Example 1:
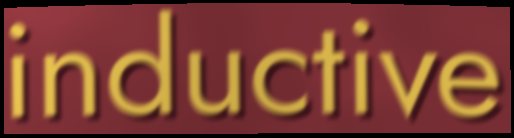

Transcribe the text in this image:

inductive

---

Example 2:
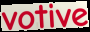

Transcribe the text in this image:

votive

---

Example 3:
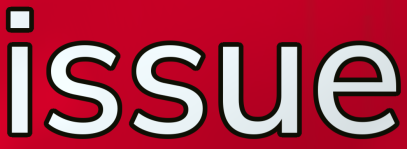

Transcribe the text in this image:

issue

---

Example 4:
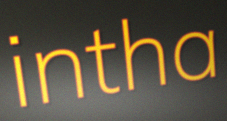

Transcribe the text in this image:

intha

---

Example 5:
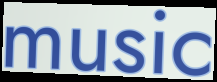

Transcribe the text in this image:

music